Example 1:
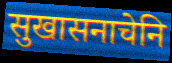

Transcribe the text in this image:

सुखासनाचेनि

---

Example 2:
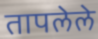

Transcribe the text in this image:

तापलेले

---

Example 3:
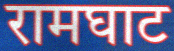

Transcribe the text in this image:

रामघाट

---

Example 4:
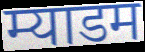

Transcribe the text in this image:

म्याडम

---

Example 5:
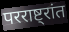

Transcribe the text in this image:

परराष्ट्रांत